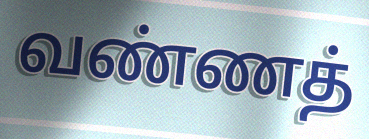
வண்ணத்